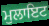
ਮੁਲਾਇਟ